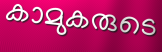
കാമുകരുടെ